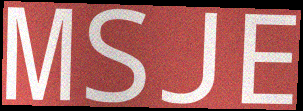
MSJE